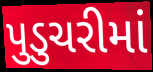
પુડુચરીમાં